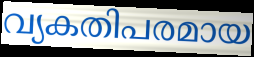
വ്യകതിപരമായ